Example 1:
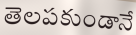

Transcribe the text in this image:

తెలపకుండానే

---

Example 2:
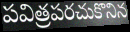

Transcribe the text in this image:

పవిత్రపరచుకొనిన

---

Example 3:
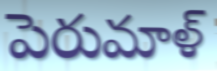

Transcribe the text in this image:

పెరుమాళ్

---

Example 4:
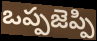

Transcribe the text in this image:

ఒప్పజెప్పి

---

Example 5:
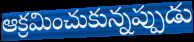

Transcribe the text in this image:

ఆక్రమించుకున్నప్పుడు